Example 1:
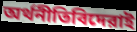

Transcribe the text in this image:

অর্থনীতিবিদেরাই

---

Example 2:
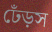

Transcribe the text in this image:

ঢেঁড়স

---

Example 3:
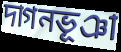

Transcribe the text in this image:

দাগনভূঞা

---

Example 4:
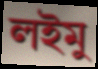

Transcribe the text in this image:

লইমু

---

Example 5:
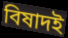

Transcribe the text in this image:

বিষাদই